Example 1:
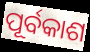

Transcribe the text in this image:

ପୂର୍ବକାଶ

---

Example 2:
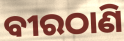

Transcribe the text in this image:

ବୀରଠାଣି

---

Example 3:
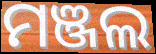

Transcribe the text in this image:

ମଞ୍ଜଲ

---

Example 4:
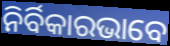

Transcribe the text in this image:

ନିର୍ବିକାରଭାବେ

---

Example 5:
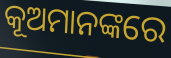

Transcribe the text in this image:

କୂଅମାନଙ୍କରେ